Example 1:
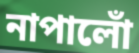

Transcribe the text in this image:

নাপালোঁ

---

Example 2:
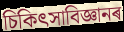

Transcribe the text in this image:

চিকিৎসাবিজ্ঞানৰ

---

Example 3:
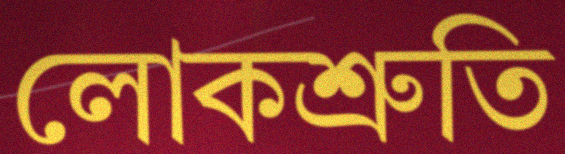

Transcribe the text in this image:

লোকশ্ৰুতি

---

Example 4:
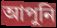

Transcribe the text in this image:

আপুনি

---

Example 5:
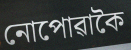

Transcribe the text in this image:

নোপোৱাকৈ